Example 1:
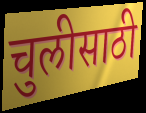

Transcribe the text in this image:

चुलीसाठी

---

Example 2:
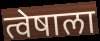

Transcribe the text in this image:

त्वेषाला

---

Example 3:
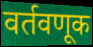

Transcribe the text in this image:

वर्तवणूक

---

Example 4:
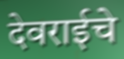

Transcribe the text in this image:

देवराईचे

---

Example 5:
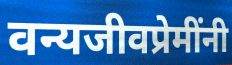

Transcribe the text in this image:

वन्यजीवप्रेमींनी